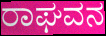
ರಾಘವನ